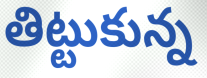
తిట్టుకున్న